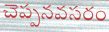
చెప్పనవసరం